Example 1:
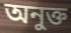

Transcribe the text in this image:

অনুক্ত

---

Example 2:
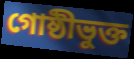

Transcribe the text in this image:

গোষ্ঠীভুক্ত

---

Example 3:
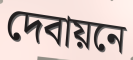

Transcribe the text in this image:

দেবায়নে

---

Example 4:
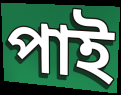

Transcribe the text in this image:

পাই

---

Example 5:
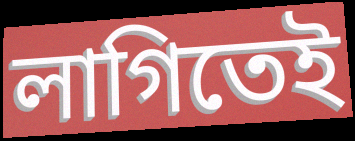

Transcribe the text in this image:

লাগিতেই